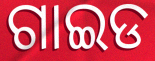
ଗାଇଡ